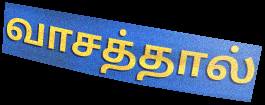
வாசத்தால்